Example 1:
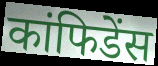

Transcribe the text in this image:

कांफिडेंस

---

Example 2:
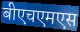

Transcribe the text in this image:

बीएचएमएस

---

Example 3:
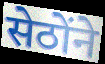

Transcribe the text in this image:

सेठोंने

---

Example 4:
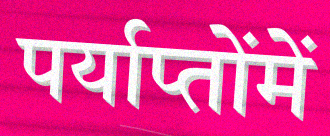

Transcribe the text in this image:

पर्याप्तोंमें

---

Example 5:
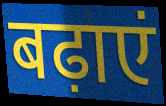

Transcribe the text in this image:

बढ़ाएं